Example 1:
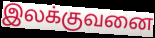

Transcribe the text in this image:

இலக்குவனை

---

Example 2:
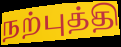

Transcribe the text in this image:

நற்புத்தி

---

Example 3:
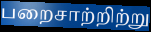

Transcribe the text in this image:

பறைசாற்றிற்று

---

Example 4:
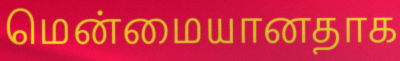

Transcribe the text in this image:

மென்மையானதாக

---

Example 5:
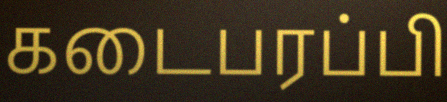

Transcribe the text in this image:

கடைபரப்பி